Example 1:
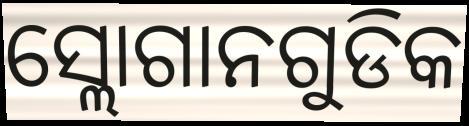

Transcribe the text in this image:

ସ୍ଲୋଗାନଗୁଡିକ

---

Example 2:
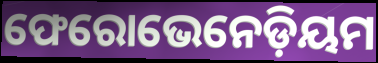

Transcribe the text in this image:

ଫେରୋଭେନେଡ଼ିୟମ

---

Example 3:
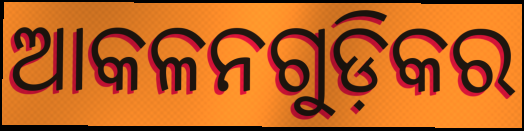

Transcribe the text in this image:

ଆକଳନଗୁଡ଼ିକର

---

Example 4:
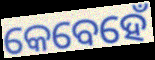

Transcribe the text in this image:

କେବେହେଁ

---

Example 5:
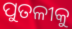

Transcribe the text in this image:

ପୁତଳୀକୁ